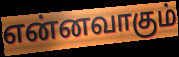
என்னவாகும்